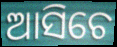
ଆସିଚେ